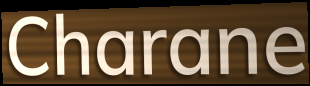
Charane